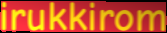
irukkirom